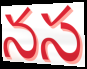
నస